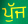
ਪੁੱਜ